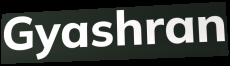
Gyashran